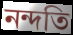
নন্দতি